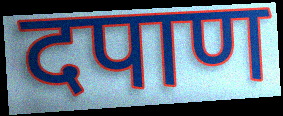
दपाण